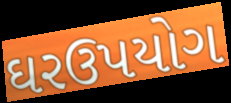
ઘરઉપયોગ